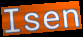
Isen